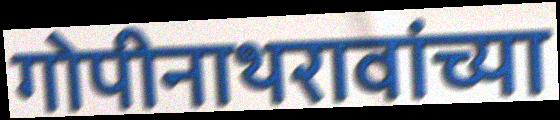
गोपीनाथरावांच्या